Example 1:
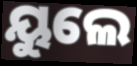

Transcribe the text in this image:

ୟୁଲେ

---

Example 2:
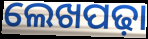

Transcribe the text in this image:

ଲେଖପଢ଼ା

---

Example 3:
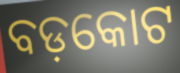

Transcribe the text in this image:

ବଡ଼କୋଟ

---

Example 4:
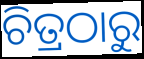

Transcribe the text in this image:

ଚିତ୍ରଠାରୁ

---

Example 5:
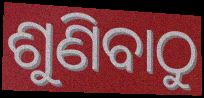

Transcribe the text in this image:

ଶୁଣିବାଠୁ